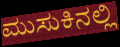
ಮುಸುಕಿನಲ್ಲಿ